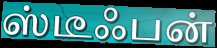
ஸ்டீஃபன்